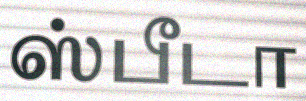
ஸ்பீடா